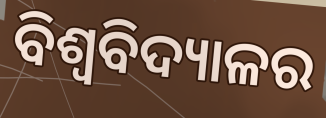
ବିଶ୍ୱବିଦ୍ୟାଳର